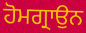
ਹੋਮਗ੍ਰਾਉਨ